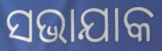
ସଭାଯାକ